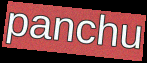
panchu